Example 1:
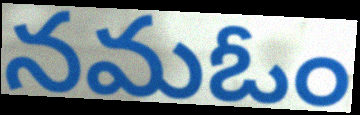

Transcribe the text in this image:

నమఓం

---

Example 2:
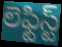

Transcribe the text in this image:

లెఫ్టిస్ట్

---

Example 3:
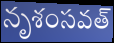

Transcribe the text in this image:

నృశంసవత్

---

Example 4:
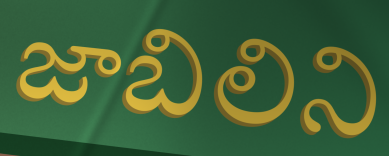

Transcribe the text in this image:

జాబిలిని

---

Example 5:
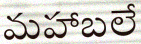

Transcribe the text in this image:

మహాబలే